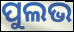
ପୁଲଭ